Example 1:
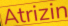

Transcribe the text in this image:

Atrizin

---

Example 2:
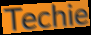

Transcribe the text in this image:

Techie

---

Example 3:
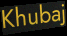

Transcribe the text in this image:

Khubaj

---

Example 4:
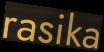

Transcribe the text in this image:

rasika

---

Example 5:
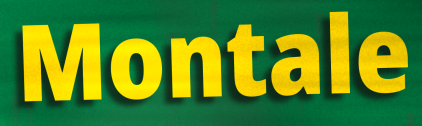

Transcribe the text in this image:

Montale